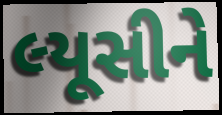
લ્યૂસીને